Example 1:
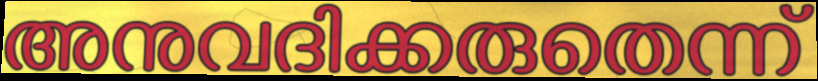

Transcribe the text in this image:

അനുവദിക്കരുതെന്ന്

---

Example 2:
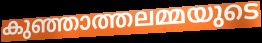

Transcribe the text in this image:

കുഞ്ഞാത്തലമ്മയുടെ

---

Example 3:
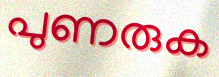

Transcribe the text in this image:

പുണരുക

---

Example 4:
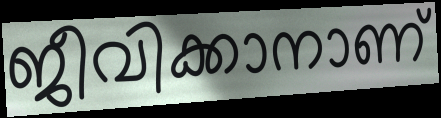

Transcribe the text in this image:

ജീവിക്കാനാണ്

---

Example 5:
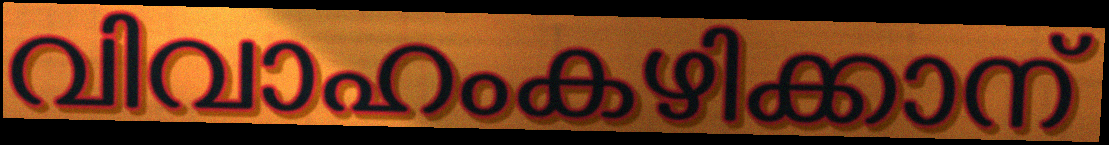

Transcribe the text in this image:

വിവാഹംകഴിക്കാന്